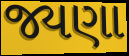
જ્યણા